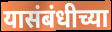
यासंबंधीच्या